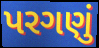
પરગણું